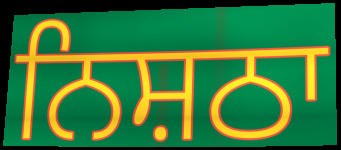
ਨਿਸ਼ਠਾ